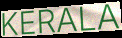
KERALA